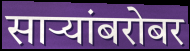
साऱ्यांबरोबर